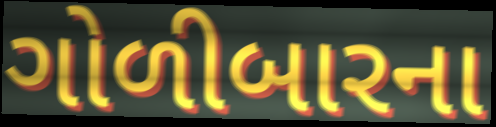
ગોળીબારના